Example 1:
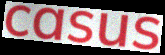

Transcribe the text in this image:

casus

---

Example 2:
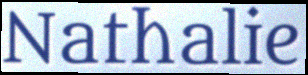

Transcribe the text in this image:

Nathalie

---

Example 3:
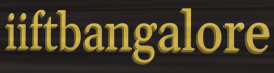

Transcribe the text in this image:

iiftbangalore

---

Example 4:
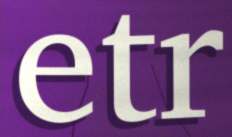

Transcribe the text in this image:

etr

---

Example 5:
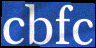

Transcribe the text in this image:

cbfc